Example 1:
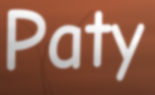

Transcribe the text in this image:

Paty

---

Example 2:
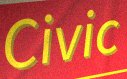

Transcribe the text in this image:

Civic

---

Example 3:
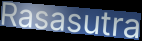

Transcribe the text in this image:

Rasasutra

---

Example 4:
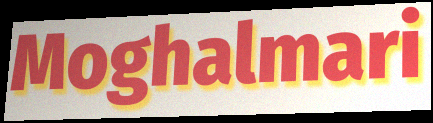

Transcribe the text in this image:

Moghalmari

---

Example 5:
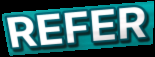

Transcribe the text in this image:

REFER